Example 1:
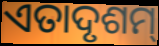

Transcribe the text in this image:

ଏତାଦୃଶମ୍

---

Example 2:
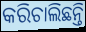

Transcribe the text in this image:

କରିଚାଲିଛନ୍ତି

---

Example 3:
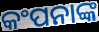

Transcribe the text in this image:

କଂପନାଙ୍କ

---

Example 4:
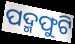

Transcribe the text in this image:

ପଦ୍ମଫୁଟି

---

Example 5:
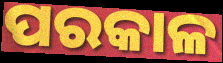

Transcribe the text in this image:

ପରକାଳ